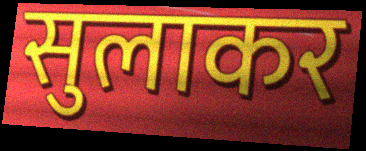
सुलाकर